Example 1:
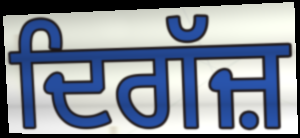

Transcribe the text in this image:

ਦਿਗੱਜ਼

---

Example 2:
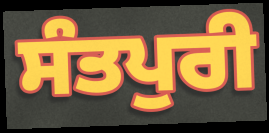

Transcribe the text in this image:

ਸੰਤਪੁਰੀ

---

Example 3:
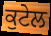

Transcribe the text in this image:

ਕੁਟੇਲ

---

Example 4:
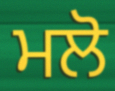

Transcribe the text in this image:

ਮਲੋ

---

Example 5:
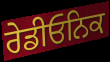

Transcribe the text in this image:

ਰੇਡੀਓਨਿਕ